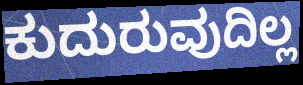
ಕುದುರುವುದಿಲ್ಲ